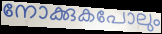
നോക്കുകപോലും